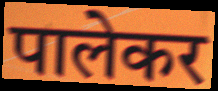
पालेकर